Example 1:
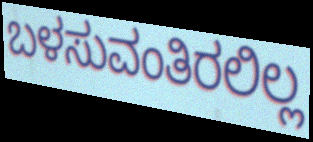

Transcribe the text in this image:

ಬಳಸುವಂತಿರಲಿಲ್ಲ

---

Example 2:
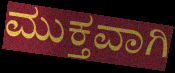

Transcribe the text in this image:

ಮುಕ್ತವಾಗಿ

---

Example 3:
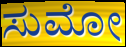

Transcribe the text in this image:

ಸುಮೋ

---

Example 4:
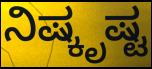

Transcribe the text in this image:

ನಿಷ್ಕೃಷ್ಟ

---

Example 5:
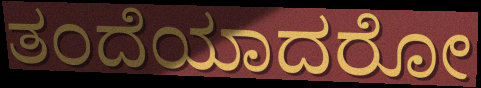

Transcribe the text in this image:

ತಂದೆಯಾದರೋ